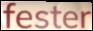
fester